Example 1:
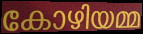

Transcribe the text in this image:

കോഴിയമ്മ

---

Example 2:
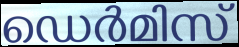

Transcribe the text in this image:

ഡെർമിസ്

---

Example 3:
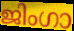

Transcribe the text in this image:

ജിംഗാ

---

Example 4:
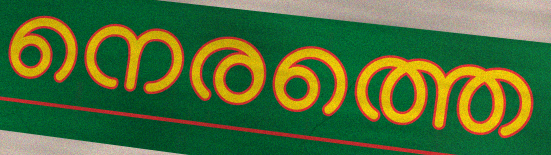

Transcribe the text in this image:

നെരത്തെ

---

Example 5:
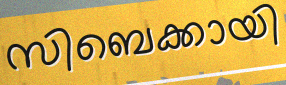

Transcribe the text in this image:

സിബെക്കായി